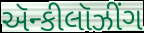
ઍન્કીલૉઝીંગ